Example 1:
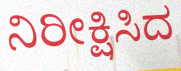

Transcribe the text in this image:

ನಿರೀಕ್ಷಿಸಿದ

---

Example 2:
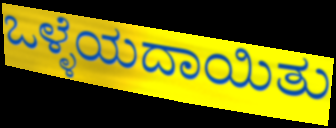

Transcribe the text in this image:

ಒಳ್ಳೆಯದಾಯಿತು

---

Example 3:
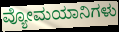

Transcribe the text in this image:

ವ್ಯೋಮಯಾನಿಗಳು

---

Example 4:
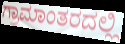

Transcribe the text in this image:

ಗ್ರಾಮಾಂತರದಲ್ಲಿ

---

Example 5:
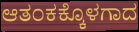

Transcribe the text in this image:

ಆತಂಕಕ್ಕೊಳಗಾದ